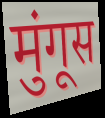
मुंगूस